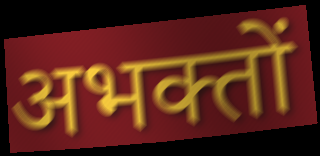
अभक्तों